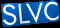
SLVC